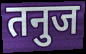
तनुज